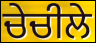
ਚੇਚੀਲੇ